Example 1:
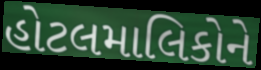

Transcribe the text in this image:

હોટલમાલિકોને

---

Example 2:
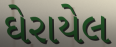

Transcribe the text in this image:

ઘેરાયેલ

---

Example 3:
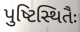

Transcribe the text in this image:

પુષ્ટિસ્થિતૈઃ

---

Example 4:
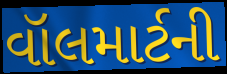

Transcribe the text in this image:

વૉલમાર્ટની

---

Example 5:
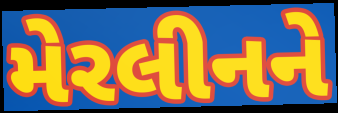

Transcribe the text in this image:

મેરલીનને